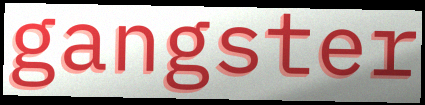
gangster